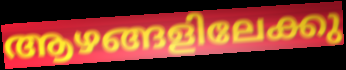
ആഴങ്ങളിലേക്കു